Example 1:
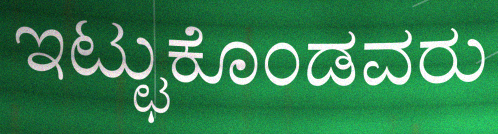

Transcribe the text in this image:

ಇಟ್ಟುಕೊಂಡವರು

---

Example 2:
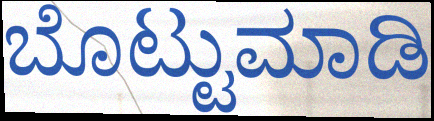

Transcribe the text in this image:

ಬೊಟ್ಟುಮಾಡಿ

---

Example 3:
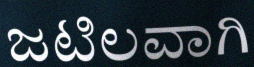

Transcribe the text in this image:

ಜಟಿಲವಾಗಿ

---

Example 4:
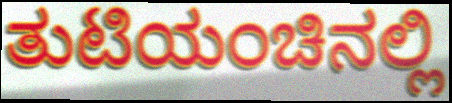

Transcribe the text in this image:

ತುಟಿಯಂಚಿನಲ್ಲಿ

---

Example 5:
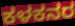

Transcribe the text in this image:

ಕಳಕನರ